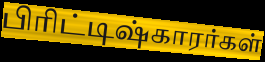
பிரிட்டிஷ்காரர்கள்